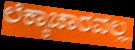
ಲೆಕ್ಕಾಚಾರವಲ್ಲ